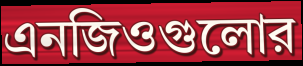
এনজিওগুলোর